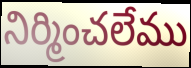
నిర్మించలేము